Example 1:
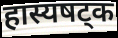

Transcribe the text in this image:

हास्यषट्क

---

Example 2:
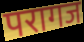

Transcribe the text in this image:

परागज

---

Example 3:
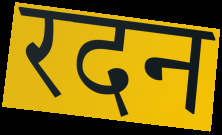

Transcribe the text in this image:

रदन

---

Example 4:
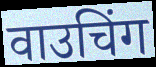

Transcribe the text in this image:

वाउचिंग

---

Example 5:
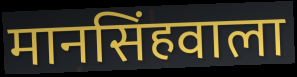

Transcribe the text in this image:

मानसिंहवाला